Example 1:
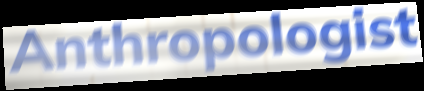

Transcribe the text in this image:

Anthropologist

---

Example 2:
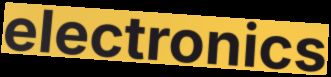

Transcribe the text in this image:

electronics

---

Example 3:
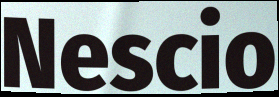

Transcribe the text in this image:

Nescio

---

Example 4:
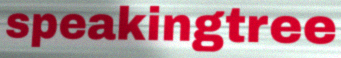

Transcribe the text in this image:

speakingtree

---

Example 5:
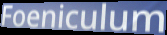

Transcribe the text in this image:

Foeniculum